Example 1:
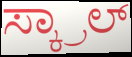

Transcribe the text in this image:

ಸ್ಕ್ರಾಲ್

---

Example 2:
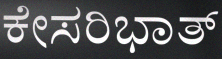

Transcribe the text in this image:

ಕೇಸರಿಭಾತ್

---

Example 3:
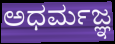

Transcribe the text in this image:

ಅಧರ್ಮಜ್ಞ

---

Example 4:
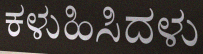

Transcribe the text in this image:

ಕಳುಹಿಸಿದಳು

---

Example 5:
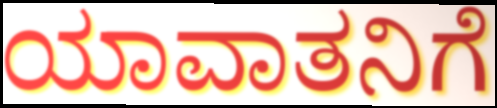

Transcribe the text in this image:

ಯಾವಾತನಿಗೆ